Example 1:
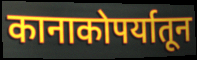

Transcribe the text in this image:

कानाकोपर्यातून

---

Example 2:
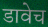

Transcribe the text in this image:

डावेच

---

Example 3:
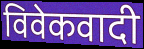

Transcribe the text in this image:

विवेकवादी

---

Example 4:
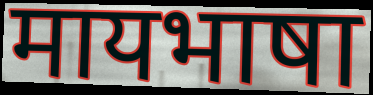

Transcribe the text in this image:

मायभाषा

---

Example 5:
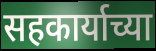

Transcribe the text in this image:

सहकार्याच्या